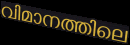
വിമാനത്തിലെ